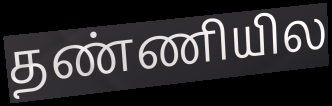
தண்ணியில